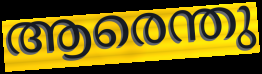
ആരെന്തു